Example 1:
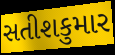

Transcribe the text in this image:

સતીશકુમાર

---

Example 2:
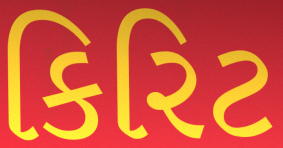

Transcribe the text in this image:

કિરિટ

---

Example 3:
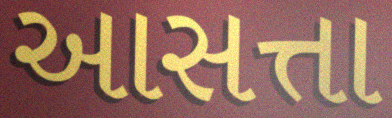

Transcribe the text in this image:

આસત્તા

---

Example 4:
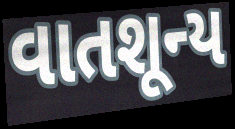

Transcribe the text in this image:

વાતશૂન્ય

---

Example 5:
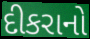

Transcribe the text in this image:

દીકરાનો